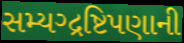
સમ્યગ્દ્રષ્ટિપણાની